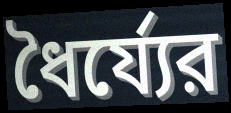
ধৈর্য্যের